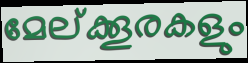
മേല്ക്കൂരകളും